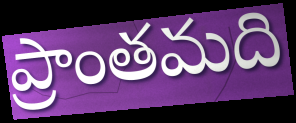
ప్రాంతమది